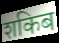
शकिब